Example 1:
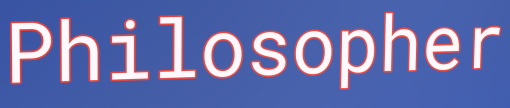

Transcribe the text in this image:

Philosopher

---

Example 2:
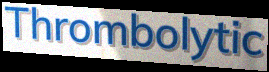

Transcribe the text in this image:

Thrombolytic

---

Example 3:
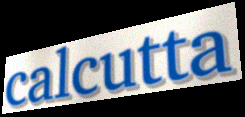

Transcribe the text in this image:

calcutta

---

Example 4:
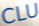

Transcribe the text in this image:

CLU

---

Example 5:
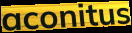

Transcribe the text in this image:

aconitus